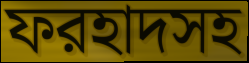
ফরহাদসহ